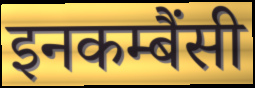
इनकम्बैंसी